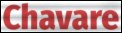
Chavare